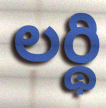
లర్థి